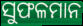
ସୁଫଳମାନ